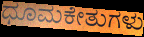
ಧೂಮಕೇತುಗಳು